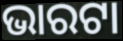
ଭାରଟା